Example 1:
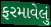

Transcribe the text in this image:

ફરમાવેલું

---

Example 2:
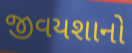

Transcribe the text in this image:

જીવયશાનો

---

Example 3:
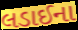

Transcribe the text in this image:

લડાઈના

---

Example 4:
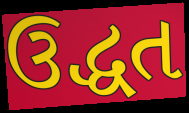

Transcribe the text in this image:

ઉદ્ધત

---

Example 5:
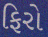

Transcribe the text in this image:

ફિરો